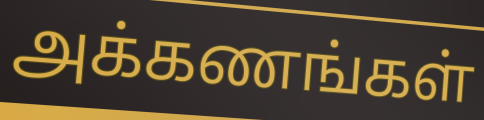
அக்கணங்கள்